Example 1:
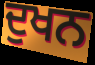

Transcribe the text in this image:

ਦੁਖਨ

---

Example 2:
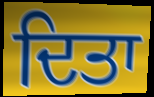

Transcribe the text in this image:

ਦਿਤਾ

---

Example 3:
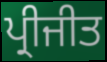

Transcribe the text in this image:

ਪ੍ਰੀਜੀਤ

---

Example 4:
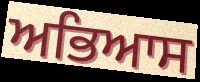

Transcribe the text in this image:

ਅਭਿਆਸ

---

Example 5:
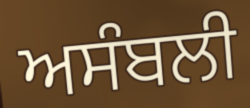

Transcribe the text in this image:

ਅਸੰਬਲੀ